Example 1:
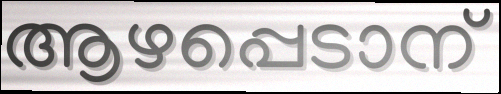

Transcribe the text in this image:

ആഴപ്പെടാന്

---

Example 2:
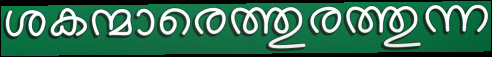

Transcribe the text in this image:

ശകന്മാരെത്തുരത്തുന്ന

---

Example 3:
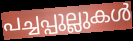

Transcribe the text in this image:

പച്ചപ്പുല്ലുകൾ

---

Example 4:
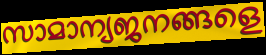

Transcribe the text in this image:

സാമാന്യജനങ്ങളെ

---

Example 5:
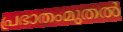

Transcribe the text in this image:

പ്രഭാതംമുതൽ